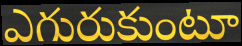
ఎగురుకుంటూ